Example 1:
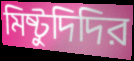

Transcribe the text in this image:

মিষ্টুদিদির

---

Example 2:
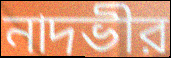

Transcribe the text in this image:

নাদভীর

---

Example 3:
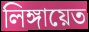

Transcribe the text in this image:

লিঙ্গায়েত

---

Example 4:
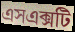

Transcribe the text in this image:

এসএক্সটি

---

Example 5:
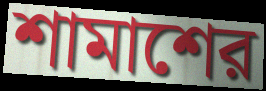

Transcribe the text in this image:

শামাশের